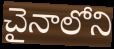
చైనాలోని